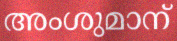
അംശുമാന്